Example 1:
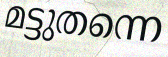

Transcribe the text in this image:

മട്ടുതന്നെ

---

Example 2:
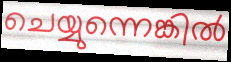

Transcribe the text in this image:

ചെയ്യുന്നെങ്കിൽ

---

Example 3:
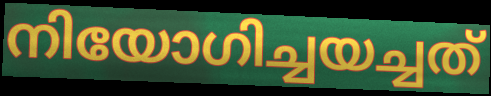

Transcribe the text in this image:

നിയോഗിച്ചയച്ചത്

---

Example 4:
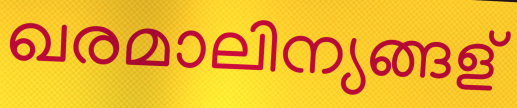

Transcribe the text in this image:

ഖരമാലിന്യങ്ങള്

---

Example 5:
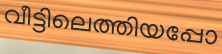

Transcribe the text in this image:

വീട്ടിലെത്തിയപ്പോ